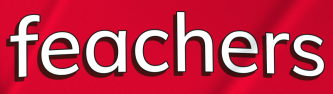
feachers